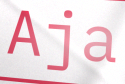
Aja